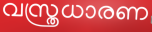
വസ്ത്രധാരണ